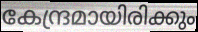
കേന്ദ്രമായിരിക്കും